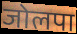
जोलपा